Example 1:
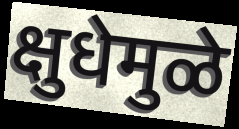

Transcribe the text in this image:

क्षुधेमुळे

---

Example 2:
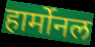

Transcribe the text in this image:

हार्मोनल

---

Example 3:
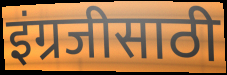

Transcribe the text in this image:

इंग्रजीसाठी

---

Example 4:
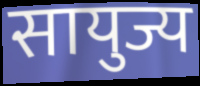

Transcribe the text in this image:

सायुज्य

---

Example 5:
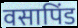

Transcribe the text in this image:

वसापिंड